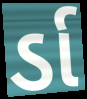
ર્ડા